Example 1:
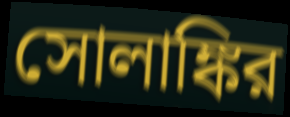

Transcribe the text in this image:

সোলাঙ্কির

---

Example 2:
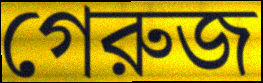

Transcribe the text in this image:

গেরুজ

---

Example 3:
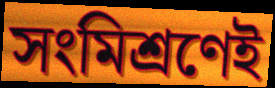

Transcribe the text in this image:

সংমিশ্রণেই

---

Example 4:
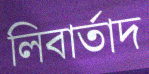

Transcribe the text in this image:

লিবার্তাদ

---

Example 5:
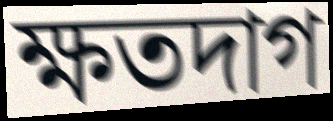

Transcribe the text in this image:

ক্ষতদাগ